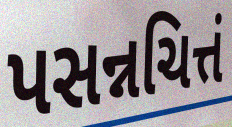
પસન્નચિત્તં